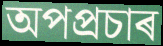
অপপ্ৰচাৰ